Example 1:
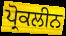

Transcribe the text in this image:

ਪ੍ਰੋਕਲੀਨ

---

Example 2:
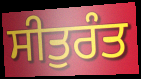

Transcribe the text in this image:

ਸੀਤੁਰੰਤ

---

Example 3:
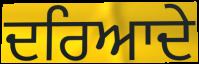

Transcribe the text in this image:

ਦਰਿਆਦੇ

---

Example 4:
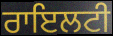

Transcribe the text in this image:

ਰਾਇਲਟੀ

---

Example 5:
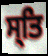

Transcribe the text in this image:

ਸ੍ਤਿ